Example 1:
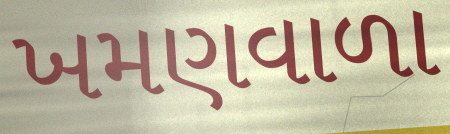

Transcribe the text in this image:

ખમણવાળા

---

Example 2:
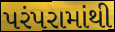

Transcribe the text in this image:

પરંપરામાંથી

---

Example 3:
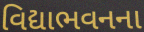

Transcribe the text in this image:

વિદ્યાભવનના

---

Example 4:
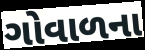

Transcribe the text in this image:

ગોવાળના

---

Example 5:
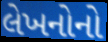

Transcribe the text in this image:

લેખનોનો